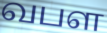
வபள